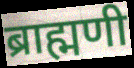
ब्राह्मणी